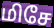
மிசே